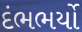
દંભભર્યો